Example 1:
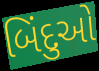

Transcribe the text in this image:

બિંદુઓ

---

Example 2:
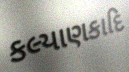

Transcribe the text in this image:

કલ્યાણકાદિ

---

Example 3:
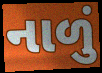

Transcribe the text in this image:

નાળું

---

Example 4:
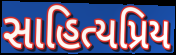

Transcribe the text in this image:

સાહિત્યપ્રિય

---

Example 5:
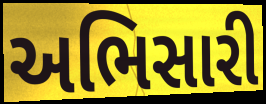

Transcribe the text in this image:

અભિસારી